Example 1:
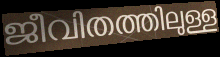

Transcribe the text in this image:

ജീവിതത്തിലുള്ള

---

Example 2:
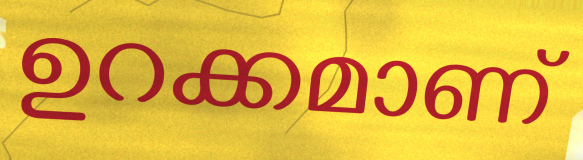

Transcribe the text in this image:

ഉറക്കമാണ്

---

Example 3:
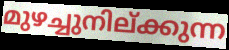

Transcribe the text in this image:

മുഴച്ചുനില്ക്കുന്ന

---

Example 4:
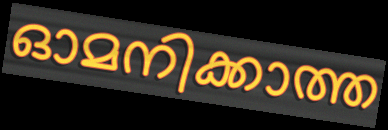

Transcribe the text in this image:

ഓമനിക്കാത്ത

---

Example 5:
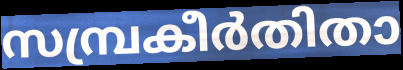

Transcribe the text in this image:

സമ്പ്രകീർതിതാ